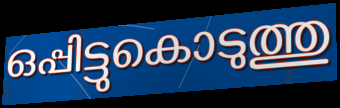
ഒപ്പിട്ടുകൊടുത്തു